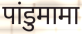
पांडुमामा